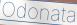
Odonata